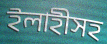
ইলাহীসহ